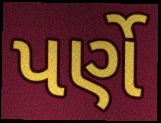
પર્ણે